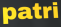
patri